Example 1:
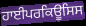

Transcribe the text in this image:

ਹਾਈਪਰਕਿਊਸਿਸ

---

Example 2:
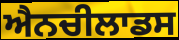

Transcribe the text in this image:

ਐਨਚੀਲਾਡਸ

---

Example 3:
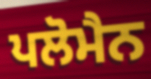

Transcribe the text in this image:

ਪਲੋਮੈਨ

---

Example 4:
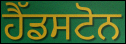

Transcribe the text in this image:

ਹੈੱਡਸਟੋਨ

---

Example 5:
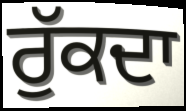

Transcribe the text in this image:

ਰੁੱਕਦਾ